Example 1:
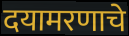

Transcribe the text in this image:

दयामरणाचे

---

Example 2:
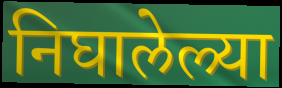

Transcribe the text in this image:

निघालेल्या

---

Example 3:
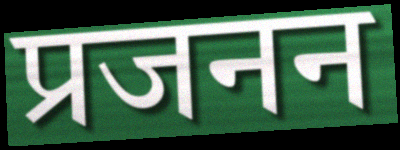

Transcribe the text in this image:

प्रजनन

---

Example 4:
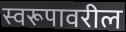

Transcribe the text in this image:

स्वरूपावरील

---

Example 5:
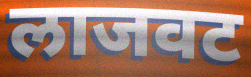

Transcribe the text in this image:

लाजवट